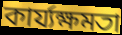
কাৰ্য্যক্ষমতা